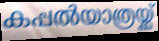
കപ്പൽയാത്രയ്ക്ക്